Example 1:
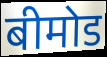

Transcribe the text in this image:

बीमोड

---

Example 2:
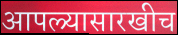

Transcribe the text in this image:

आपल्यासारखीच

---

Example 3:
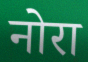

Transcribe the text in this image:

नोरा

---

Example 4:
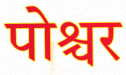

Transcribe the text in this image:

पोश्चर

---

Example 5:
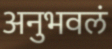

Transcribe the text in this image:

अनुभवलं